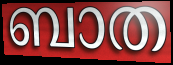
ബാത